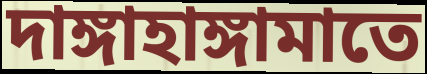
দাঙ্গাহাঙ্গামাতে